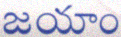
జయాం